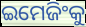
ଇମେଜିଂକୁ